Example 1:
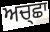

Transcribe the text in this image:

ਅਚ੍ਛਾ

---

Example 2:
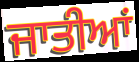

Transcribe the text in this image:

ਜਾਤੀਆਂ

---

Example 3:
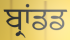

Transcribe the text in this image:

ਬ੍ਰਾਂਡਡ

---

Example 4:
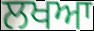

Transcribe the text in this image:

ਲਖਆ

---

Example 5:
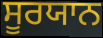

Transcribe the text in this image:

ਸੂਰਯਾਨ